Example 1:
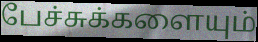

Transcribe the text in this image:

பேச்சுக்களையும்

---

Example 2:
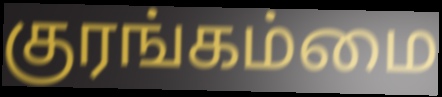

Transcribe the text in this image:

குரங்கம்மை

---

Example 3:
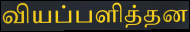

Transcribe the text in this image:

வியப்பளித்தன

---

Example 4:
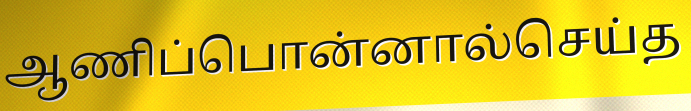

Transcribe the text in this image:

ஆணிப்பொன்னால்செய்த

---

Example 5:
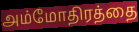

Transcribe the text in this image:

அம்மோதிரத்தை